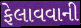
ફેલાવવાની